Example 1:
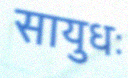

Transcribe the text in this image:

सायुधः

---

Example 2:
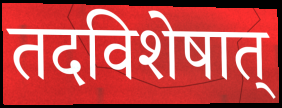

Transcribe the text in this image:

तदविशेषात्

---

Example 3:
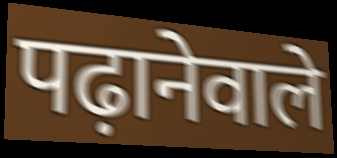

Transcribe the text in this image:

पढ़ानेवाले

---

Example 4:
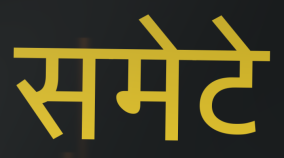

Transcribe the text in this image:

समेटे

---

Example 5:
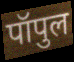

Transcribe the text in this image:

पॉपुल